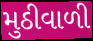
મુઠીવાળી